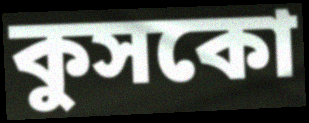
কুসকো